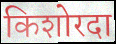
किशोरदा